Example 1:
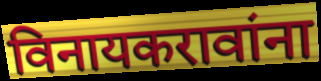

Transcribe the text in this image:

विनायकरावांना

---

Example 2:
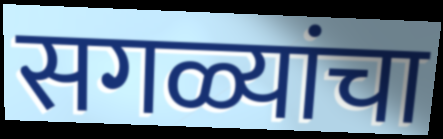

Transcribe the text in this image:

सगळ्यांचा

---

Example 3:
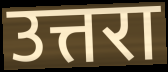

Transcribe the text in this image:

उत्तरा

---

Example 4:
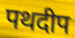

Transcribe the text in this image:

पथदीप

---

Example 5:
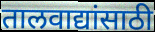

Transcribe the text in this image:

तालवाद्यांसाठी